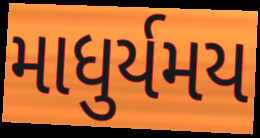
માધુર્યમય